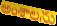
అంశాలను